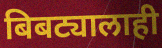
बिबट्यालाही